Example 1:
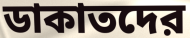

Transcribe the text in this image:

ডাকাতদের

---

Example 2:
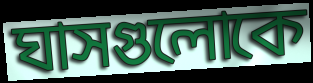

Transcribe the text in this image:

ঘাসগুলোকে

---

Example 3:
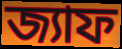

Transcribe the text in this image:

জ্যাফ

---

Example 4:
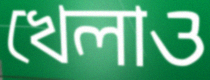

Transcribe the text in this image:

খেলাও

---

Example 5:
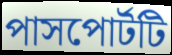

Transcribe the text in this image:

পাসপোর্টটি